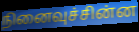
நினைவுச்சின்ன